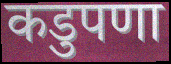
कडुपणा